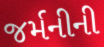
જર્મનીની